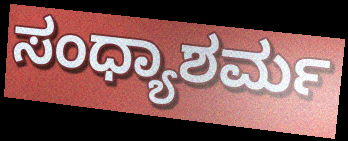
ಸಂಧ್ಯಾಶರ್ಮ